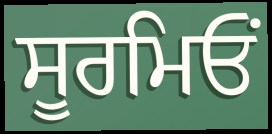
ਸੂਰਮਿਓਂ